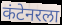
कंटेनरला